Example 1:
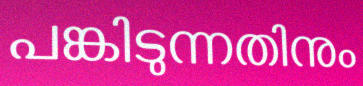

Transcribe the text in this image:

പങ്കിടുന്നതിനും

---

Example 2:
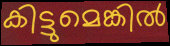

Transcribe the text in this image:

കിട്ടുമെങ്കിൽ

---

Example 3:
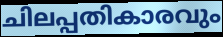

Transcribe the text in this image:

ചിലപ്പതികാരവും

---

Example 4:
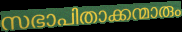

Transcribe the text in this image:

സഭാപിതാക്കന്മാരും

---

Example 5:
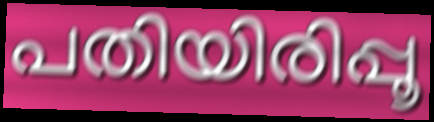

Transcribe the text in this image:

പതിയിരിപ്പൂ